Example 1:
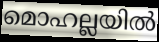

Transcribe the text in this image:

മൊഹല്ലയിൽ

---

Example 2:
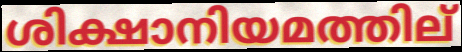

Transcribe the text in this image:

ശിക്ഷാനിയമത്തില്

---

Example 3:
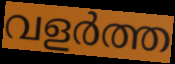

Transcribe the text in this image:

വളർത്ത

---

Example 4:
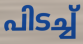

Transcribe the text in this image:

പിടച്ച്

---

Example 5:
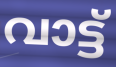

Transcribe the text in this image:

വാട്ട്